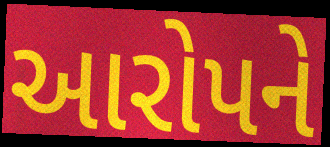
આરોપને